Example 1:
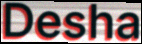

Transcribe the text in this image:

Desha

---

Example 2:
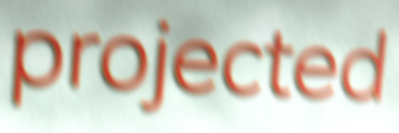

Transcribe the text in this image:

projected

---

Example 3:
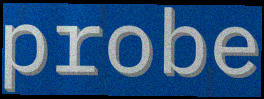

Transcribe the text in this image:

probe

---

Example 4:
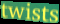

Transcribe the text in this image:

twists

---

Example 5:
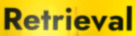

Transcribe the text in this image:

Retrieval